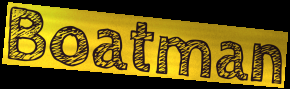
Boatman